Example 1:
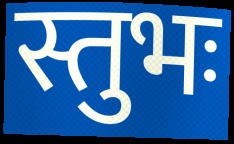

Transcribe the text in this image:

स्तुभः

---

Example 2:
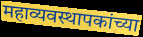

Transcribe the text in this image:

महाव्यवस्थापकांच्या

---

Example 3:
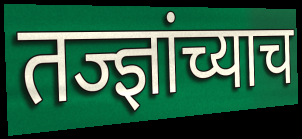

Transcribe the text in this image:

तज्ज्ञांच्याच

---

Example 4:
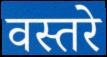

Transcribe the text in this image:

वस्तरे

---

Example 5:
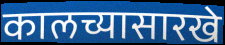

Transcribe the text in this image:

कालच्यासारखे